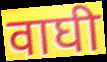
वाघी